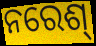
ନରେଶ୍